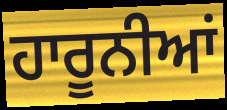
ਹਾਰੂਨੀਆਂ